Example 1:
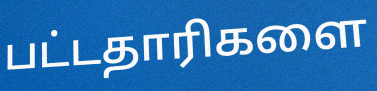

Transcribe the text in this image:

பட்டதாரிகளை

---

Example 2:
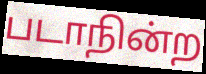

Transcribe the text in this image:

படாநின்ற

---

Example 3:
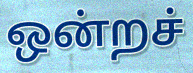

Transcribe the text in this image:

ஒன்றச்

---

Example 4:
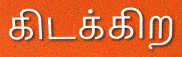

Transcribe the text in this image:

கிடக்கிற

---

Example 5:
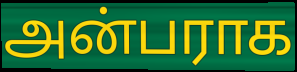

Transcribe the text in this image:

அன்பராக